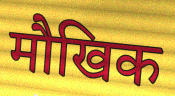
मौखिक